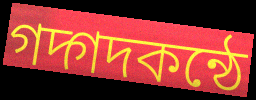
গদ্গদকন্ঠে